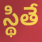
స్థితే